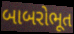
બાબરોભૂત